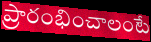
ప్రారంభించాలంటే